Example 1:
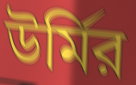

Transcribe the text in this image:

উর্মির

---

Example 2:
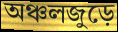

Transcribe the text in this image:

অঞ্চলজুড়ে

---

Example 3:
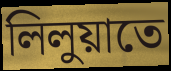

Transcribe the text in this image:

লিলুয়াতে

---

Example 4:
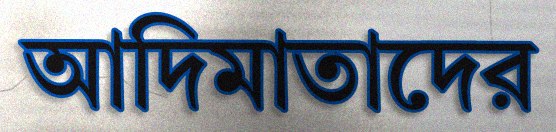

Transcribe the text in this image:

আদিমাতাদের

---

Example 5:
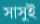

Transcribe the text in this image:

সাসুই